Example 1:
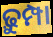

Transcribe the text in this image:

ଢ଼ୁମ୍ପା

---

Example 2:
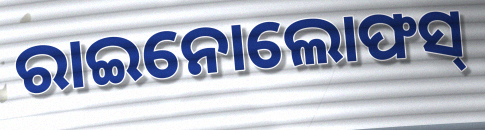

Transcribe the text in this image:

ରାଇନୋଲୋଫସ୍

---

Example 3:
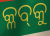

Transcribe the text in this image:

କ୍ଳବ୍‍କୁ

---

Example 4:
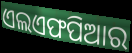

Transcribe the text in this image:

ଏଲଏଫପିଆର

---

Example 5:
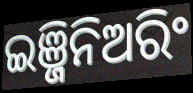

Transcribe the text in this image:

ଇଞ୍ଜିନିଅରିଂ